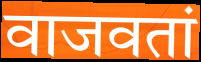
वाजवतां